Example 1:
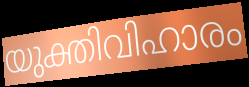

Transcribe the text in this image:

യുക്തിവിഹാരം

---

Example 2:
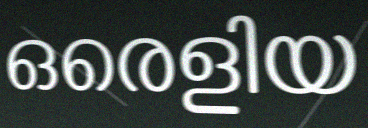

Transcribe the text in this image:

ഒരെളിയ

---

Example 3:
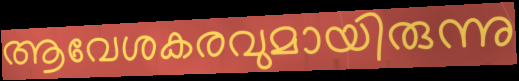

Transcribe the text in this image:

ആവേശകരവുമായിരുന്നു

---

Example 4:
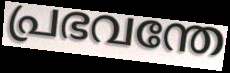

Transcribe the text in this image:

പ്രഭവന്തേ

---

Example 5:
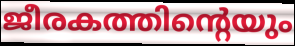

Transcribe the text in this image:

ജീരകത്തിന്റെയും